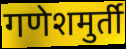
गणेशमुर्ती